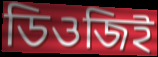
ডিওজিই